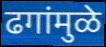
ढगांमुळे